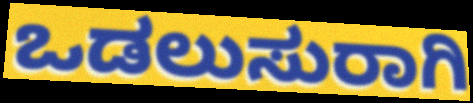
ಒಡಲುಸುರಾಗಿ